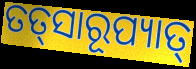
ତତ୍‌ସାରୂପ୍ୟାତ୍